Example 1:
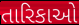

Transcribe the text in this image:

તારિકાઓ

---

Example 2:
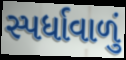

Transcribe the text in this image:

સ્પર્ધાવાળું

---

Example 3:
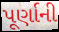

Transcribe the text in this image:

પૂર્ણાની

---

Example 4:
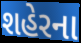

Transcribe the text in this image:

શહેરના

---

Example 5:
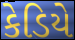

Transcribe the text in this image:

કેડિયે